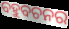
ବହୁବଚନର